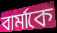
বার্মাকে